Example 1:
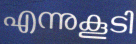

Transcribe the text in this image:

എന്നുകൂടി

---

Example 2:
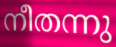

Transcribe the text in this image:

നീതന്നു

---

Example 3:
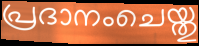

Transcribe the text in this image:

പ്രദാനംചെയ്തു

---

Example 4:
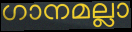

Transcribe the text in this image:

ഗാനമല്ലാ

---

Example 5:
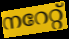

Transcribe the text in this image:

നറേറ്റ്